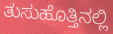
ತುಸುಹೊತ್ತಿನಲ್ಲಿ